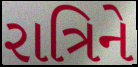
રાત્રિને